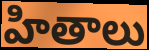
హితాలు